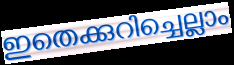
ഇതെക്കുറിച്ചെല്ലാം